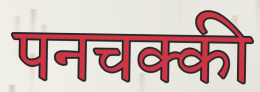
पनचक्की